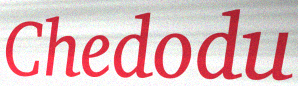
Chedodu